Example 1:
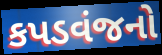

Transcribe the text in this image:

કપડવંજનો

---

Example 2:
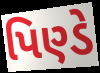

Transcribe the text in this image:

પિણ્ડે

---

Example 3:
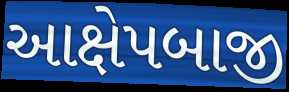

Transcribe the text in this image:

આક્ષેપબાજી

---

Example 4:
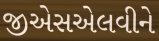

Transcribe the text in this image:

જીએસએલવીને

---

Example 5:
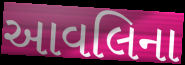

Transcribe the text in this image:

આવલિના